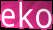
eko